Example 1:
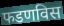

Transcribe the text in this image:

फडणविस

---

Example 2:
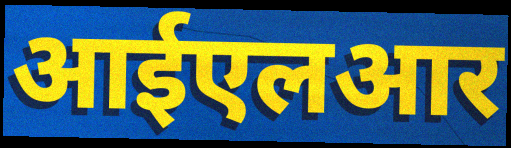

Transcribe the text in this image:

आईएलआर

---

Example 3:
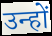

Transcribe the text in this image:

उन्हों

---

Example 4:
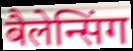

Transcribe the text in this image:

बैलेन्सिंग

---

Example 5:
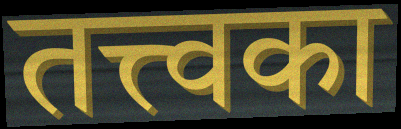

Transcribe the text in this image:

तत्त्वका